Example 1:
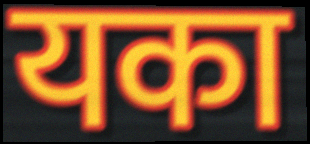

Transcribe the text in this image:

यका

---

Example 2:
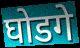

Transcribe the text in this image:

घोडगे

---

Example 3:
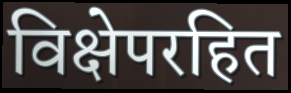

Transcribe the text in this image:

विक्षेपरहित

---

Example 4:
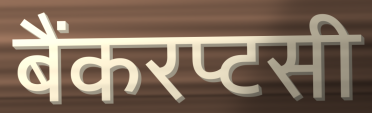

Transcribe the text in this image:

बैंकरप्टसी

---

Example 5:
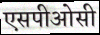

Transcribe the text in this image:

एसपीओसी